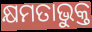
କ୍ଷମତାଭୁକ୍ତ